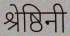
श्रेष्ठिनी